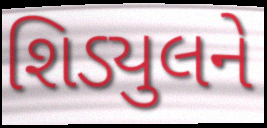
શિડ્યુલને